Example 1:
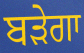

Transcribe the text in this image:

ਬੜੇਗਾ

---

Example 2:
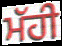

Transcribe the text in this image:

ਮੱਹੀ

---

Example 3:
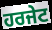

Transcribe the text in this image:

ਹਰਜੇਟ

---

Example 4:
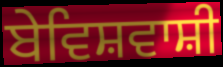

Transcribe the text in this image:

ਬੇਵਿਸ਼ਵਾਸ਼ੀ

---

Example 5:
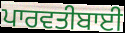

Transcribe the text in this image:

ਪਾਰਵਤੀਬਾਈ